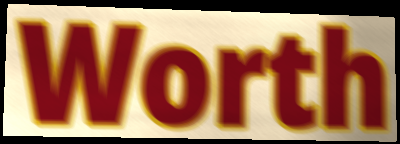
Worth